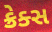
ક્રેક્સ